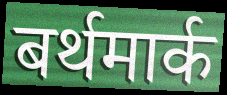
बर्थमार्क